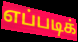
எப்படிக்